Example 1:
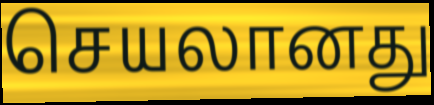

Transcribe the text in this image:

செயலானது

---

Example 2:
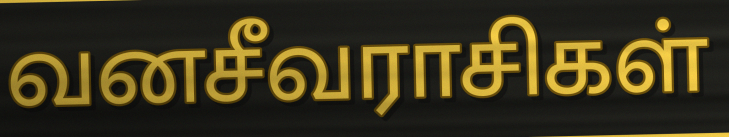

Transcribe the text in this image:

வனசீவராசிகள்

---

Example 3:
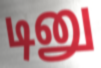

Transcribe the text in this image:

டினு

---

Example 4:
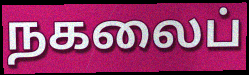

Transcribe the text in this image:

நகலைப்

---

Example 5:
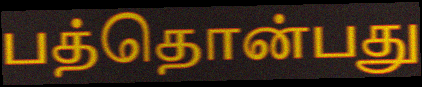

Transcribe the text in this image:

பத்தொன்பது